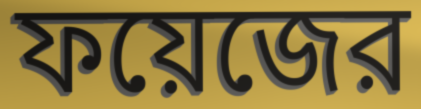
ফয়েজের